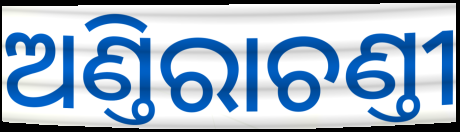
ଅଣ୍ତିରାଚଣ୍ତୀ